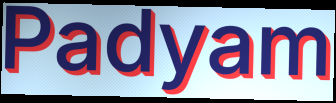
Padyam